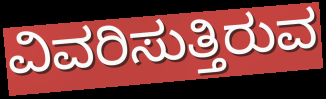
ವಿವರಿಸುತ್ತಿರುವ